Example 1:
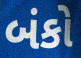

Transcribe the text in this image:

બંકો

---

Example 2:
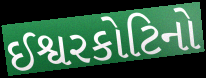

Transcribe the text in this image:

ઈશ્વરકોટિનો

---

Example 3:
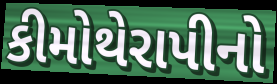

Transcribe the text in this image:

કીમોથેરાપીનો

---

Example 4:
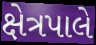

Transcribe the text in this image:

ક્ષેત્રપાલે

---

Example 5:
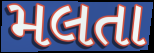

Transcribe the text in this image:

મલતા